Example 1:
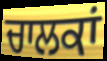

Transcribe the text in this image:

ਚਾਲਕਾਂ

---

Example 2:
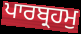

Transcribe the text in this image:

ਪਾਰਬ੍ਰਹਮੁ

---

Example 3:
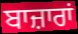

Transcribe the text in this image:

ਬਾਜ਼ਾਰਾਂ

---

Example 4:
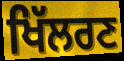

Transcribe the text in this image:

ਖਿੱਲਰਣ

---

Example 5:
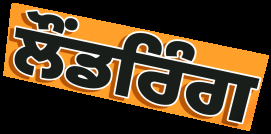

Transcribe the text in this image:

ਲੌਂਡਰਿੰਗ